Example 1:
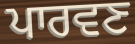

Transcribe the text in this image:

ਪਾਰਵਣ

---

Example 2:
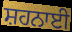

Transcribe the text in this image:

ਸ਼ਹਨਾਈ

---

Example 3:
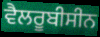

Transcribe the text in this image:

ਵੈਲਰੂਬੀਸੀਨ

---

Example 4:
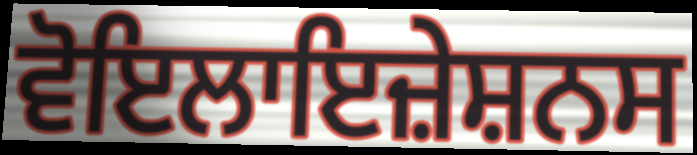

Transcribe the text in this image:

ਵੋਇਲਾਇਜ਼ੇਸ਼ਨਸ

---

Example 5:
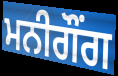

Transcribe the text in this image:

ਮਨੀਗੌਂਗ